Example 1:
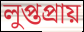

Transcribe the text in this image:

লুপ্তপ্ৰায়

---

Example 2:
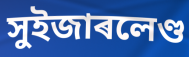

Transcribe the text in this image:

সুইজাৰলেণ্ড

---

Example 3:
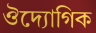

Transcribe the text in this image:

ঔদ্যোগিক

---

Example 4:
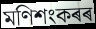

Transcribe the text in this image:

মণিশংকৰৰ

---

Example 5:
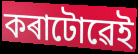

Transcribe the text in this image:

কৰাটোৱেই